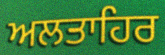
ਅਲਤਾਹਿਰ